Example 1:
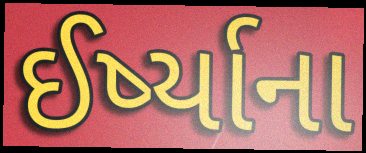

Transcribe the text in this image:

ઈર્ષ્યાના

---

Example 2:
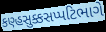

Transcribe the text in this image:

કણ્હસુક્કસપ્પટિભાગે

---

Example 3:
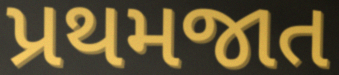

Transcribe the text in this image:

પ્રથમજાત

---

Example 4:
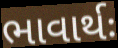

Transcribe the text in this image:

ભાવાર્થઃ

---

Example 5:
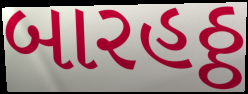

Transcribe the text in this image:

બારહઠ્ઠ